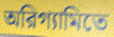
অরিগ্যামিতে